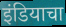
इंडियाचा